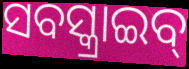
ସବସ୍କ୍ରାଇବ୍